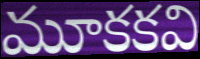
మూకకవి